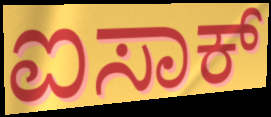
ಐಸಾಕ್